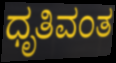
ಧೃತಿವಂತ